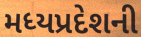
મધ્યપ્રદેશની